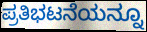
ಪ್ರತಿಭಟನೆಯನ್ನೂ